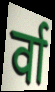
र्वा